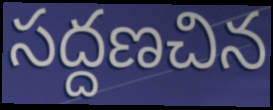
సద్దణచిన